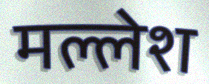
मल्लेश